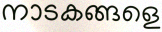
നാടകങ്ങളെ